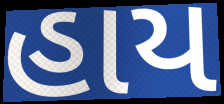
હાય